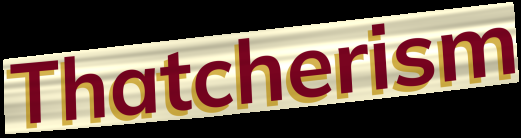
Thatcherism